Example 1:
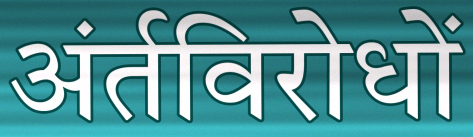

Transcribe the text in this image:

अंर्तविरोधों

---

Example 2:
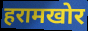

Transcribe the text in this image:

हरामखोर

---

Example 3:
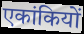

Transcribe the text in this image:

एकांकियों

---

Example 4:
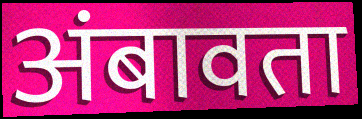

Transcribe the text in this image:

अंबावता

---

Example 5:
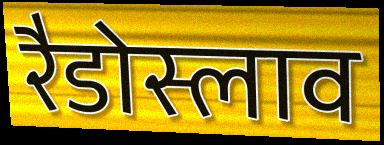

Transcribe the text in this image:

रैडोस्लाव